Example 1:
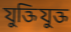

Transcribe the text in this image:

যুক্তিযুক্ত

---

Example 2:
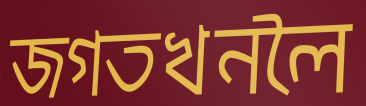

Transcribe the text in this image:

জগতখনলৈ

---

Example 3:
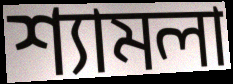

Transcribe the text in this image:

শ্যামলা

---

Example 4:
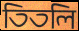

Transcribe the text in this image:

তিতলি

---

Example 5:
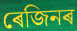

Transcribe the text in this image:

ৰেজিনৰ